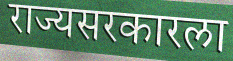
राज्यसरकारला